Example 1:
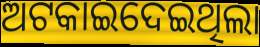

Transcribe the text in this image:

ଅଟକାଇଦେଇଥିଲା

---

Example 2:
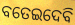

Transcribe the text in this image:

ବତେଇଦେବି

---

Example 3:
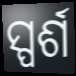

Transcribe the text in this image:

ସ୍ପର୍ଶ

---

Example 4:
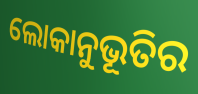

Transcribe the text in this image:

ଲୋକାନୁଭୂତିର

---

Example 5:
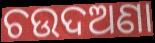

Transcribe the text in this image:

ଚଉଦଅଣା